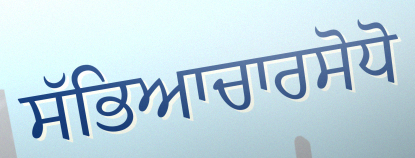
ਸੱਭਿਆਚਾਰਸੋਧੋ